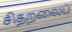
சிதறலைப்